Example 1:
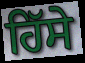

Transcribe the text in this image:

ਹਿੱਸੇ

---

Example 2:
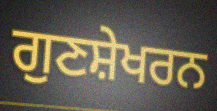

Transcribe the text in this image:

ਗੁਣਸ਼ੇਖਰਨ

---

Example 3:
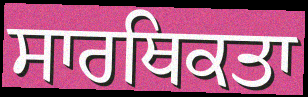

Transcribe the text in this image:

ਸਾਰਥਿਕਤਾ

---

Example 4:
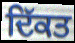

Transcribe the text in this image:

ਦਿੱਕਤ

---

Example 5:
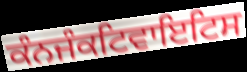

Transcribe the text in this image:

ਕੰਨਜੰਕਟਿਵਾਇਟਿਸ